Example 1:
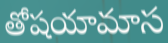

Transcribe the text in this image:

తోషయామాస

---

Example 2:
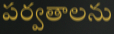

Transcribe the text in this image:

పర్వతాలను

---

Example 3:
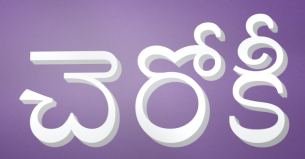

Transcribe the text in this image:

చెరోకీ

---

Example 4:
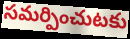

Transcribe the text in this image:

సమర్పించుటకు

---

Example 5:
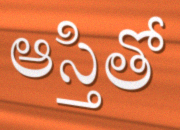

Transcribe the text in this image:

ఆస్తితో